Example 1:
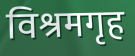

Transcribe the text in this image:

विश्रमगृह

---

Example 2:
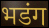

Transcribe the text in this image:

भडंग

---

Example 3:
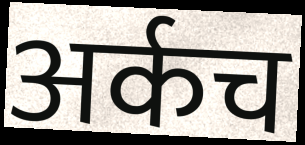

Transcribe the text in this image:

अर्कच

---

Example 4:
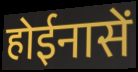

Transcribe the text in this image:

होईनासें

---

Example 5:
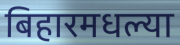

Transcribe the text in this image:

बिहारमधल्या